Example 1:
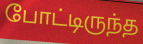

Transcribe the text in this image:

போட்டிருந்த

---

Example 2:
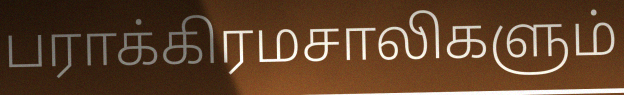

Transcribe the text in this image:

பராக்கிரமசாலிகளும்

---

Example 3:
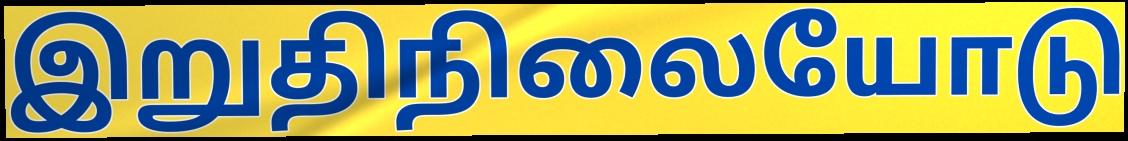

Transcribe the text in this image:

இறுதிநிலையோடு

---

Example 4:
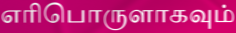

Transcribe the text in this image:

எரிபொருளாகவும்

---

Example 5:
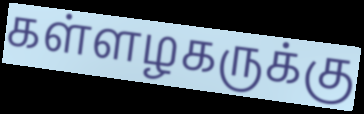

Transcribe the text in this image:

கள்ளழகருக்கு